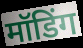
मॉडिंग